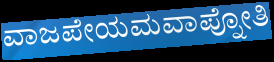
ವಾಜಪೇಯಮವಾಪ್ನೋತಿ